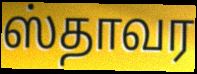
ஸ்தாவர